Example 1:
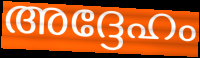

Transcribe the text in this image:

അദ്ദേഹം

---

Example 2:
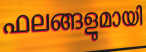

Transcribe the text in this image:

ഫലങ്ങളുമായി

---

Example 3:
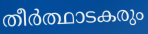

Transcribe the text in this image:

തീർത്ഥാടകരും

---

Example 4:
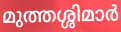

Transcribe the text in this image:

മുത്തശ്ശിമാർ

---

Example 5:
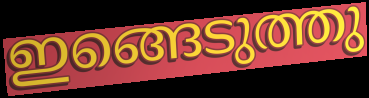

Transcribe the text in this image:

ഇങ്ങെടുത്തു